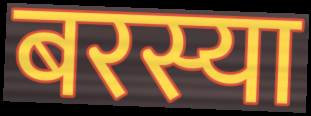
बरस्या